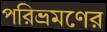
পরিভ্রমণের